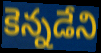
కెన్నడేని